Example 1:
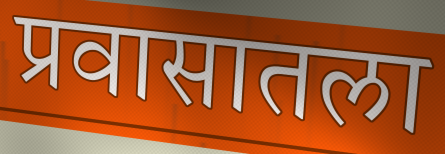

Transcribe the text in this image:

प्रवासातला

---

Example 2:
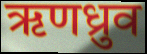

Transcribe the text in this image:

ॠणध्रुव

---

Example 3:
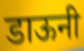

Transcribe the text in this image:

डाऊनी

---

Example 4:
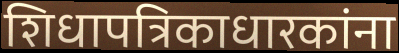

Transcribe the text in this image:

शिधापत्रिकाधारकांना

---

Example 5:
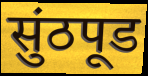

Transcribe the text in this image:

सुंठपूड